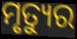
ମୃତ୍ୟୁର